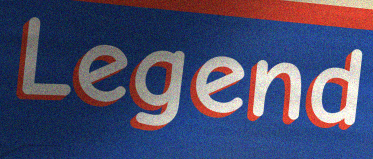
Legend